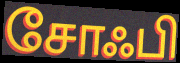
சோஃபி